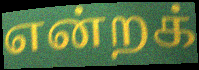
என்றக்